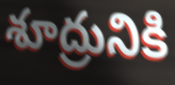
శూద్రునికి